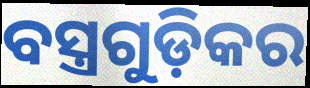
ବସ୍ତ୍ରଗୁଡ଼ିକର